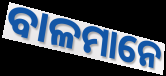
ବାଳମାନେ